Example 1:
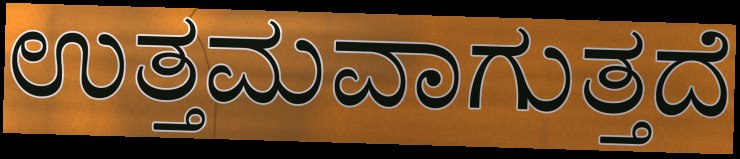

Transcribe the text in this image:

ಉತ್ತಮವಾಗುತ್ತದೆ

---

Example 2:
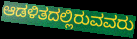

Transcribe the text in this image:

ಆಡಳಿತದಲ್ಲಿರುವವರು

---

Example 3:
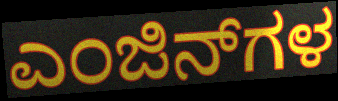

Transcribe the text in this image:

ಎಂಜಿನ್‌ಗಳ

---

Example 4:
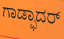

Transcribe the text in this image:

ಗಾಡ್ಫಾದರ್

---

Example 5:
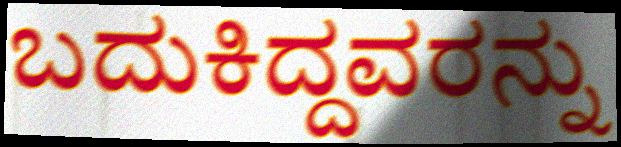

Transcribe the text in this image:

ಬದುಕಿದ್ದವರನ್ನು